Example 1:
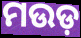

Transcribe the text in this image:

ମଉଡ଼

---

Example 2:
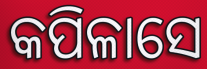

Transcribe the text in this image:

କପିଳାସେ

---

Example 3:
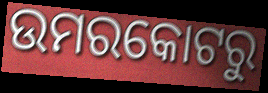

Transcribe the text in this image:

ଉମରକୋଟରୁ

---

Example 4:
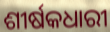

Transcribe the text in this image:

ଶୀର୍ଷକଧାରୀ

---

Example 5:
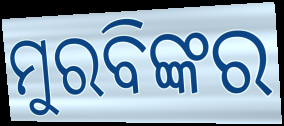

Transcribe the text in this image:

ମୁରବିଙ୍କର